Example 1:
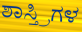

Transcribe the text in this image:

ಶಾಸ್ತ್ರಿಗಳ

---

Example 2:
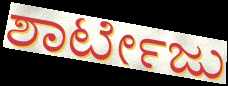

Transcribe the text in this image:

ಶಾರ್ಟೇಜು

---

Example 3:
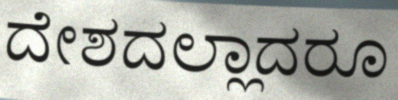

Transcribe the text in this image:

ದೇಶದಲ್ಲಾದರೂ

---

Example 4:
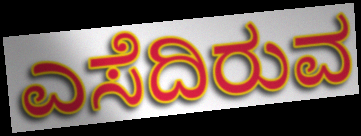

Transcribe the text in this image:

ಎಸೆದಿರುವ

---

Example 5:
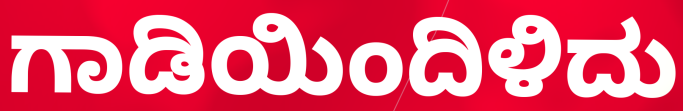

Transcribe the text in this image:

ಗಾಡಿಯಿಂದಿಳಿದು